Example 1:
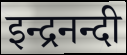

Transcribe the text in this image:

इन्द्रनन्दी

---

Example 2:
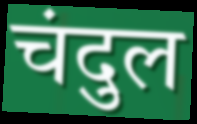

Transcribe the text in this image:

चंदुल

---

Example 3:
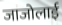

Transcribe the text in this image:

जाजोलाई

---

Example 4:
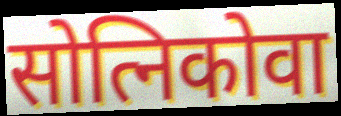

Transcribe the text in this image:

सोत्निकोवा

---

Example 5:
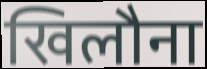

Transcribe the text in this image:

खिलौना